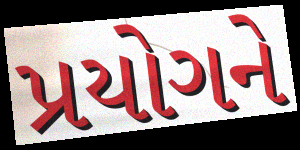
પ્રયોગને